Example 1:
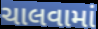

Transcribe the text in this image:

ચાલવામાં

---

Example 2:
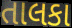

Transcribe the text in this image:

તાલકા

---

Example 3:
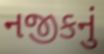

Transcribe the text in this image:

નજીકનું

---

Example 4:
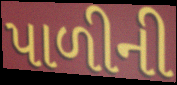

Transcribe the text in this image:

પાળીની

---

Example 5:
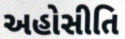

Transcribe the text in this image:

અહોસીતિ